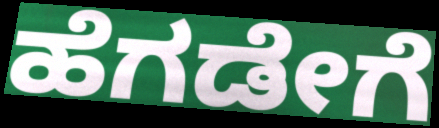
ಹೆಗಡೇಗೆ